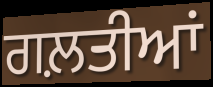
ਗਲ਼ਤੀਆਂ